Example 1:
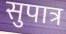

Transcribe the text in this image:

सुपात्र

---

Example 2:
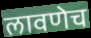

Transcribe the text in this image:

लावणेच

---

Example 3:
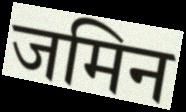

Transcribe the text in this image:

जमिन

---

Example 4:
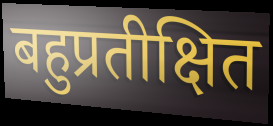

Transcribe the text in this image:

बहुप्रतीक्षित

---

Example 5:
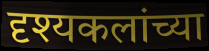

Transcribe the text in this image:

दृश्यकलांच्या